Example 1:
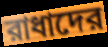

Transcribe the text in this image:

রাধাদের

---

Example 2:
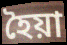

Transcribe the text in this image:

হৈয়া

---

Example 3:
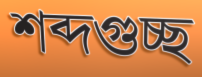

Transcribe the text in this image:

শব্দগুচ্ছ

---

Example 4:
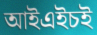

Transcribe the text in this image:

আইএইচই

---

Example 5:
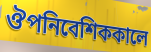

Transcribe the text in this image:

ঔপনিবেশিককালে